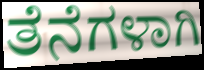
ತೆನೆಗಳಾಗಿ